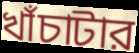
খাঁচাটার